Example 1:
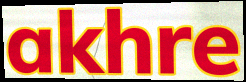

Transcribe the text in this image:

akhre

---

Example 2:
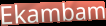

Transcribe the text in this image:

Ekambam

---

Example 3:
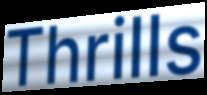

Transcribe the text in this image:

Thrills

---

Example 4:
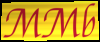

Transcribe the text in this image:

MMb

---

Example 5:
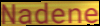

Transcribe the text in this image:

Nadene